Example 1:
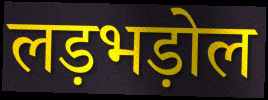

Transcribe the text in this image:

लड़भड़ोल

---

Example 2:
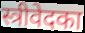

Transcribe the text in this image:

स्त्रीवेदका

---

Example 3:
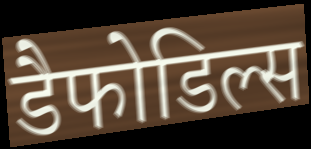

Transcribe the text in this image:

डैफोडिल्स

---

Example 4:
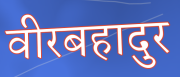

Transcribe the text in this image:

वीरबहादुर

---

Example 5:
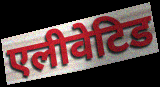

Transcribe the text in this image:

एलीवेटिड